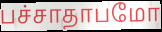
பச்சாதாபமோ